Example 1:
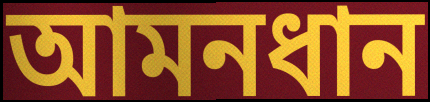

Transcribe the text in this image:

আমনধান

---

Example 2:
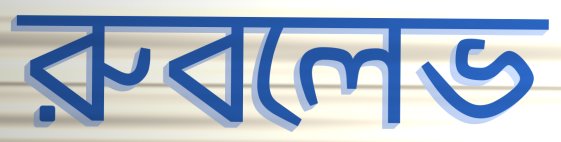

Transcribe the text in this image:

রুবলেভ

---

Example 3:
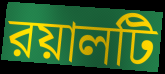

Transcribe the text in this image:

রয়ালটি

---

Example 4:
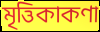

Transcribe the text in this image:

মৃত্তিকাকণা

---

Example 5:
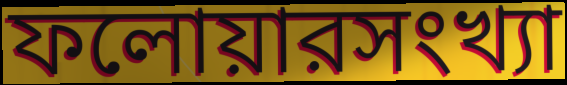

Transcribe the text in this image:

ফলোয়ারসংখ্যা